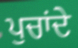
ਪੁਚਾਂਦੇ